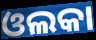
ଓଲକା